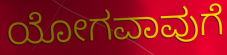
ಯೋಗವಾವುಗೆ